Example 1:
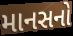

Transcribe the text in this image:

માનસનો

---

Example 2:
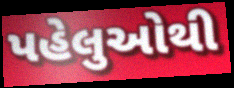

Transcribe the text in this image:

પહેલુઓથી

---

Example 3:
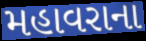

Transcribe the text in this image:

મહાવરાના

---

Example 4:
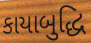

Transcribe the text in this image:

કાયાબુદ્ધિ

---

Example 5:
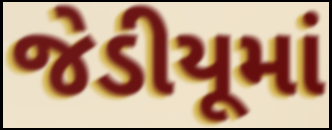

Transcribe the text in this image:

જેડીયૂમાં